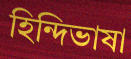
হিন্দিভাষা